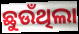
ଛୁଉଁଥିଲା